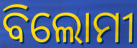
ବିଲୋମୀ